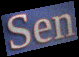
Sen